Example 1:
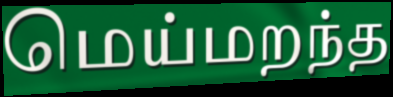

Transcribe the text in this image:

மெய்மறந்த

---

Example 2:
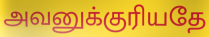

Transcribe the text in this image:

அவனுக்குரியதே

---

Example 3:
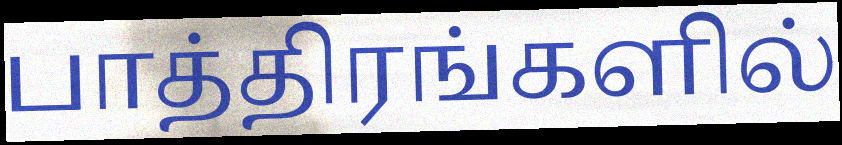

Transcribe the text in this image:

பாத்திரங்களில்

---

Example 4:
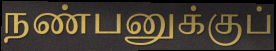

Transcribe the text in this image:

நண்பனுக்குப்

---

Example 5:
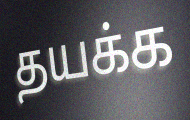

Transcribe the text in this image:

தயக்க